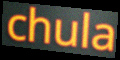
chula